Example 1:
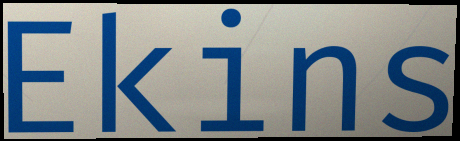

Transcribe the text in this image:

Ekins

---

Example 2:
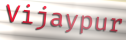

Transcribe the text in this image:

Vijaypur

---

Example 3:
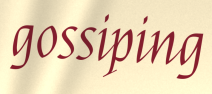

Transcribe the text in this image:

gossiping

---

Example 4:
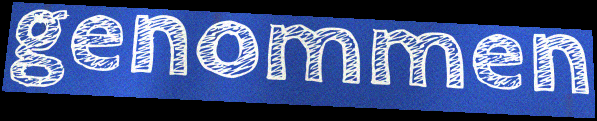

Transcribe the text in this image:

genommen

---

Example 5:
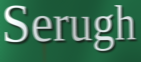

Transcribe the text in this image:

Serugh